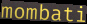
mombati